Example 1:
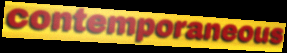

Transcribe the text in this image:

contemporaneous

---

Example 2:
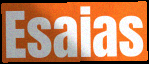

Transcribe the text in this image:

Esaias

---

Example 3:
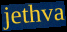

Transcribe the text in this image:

jethva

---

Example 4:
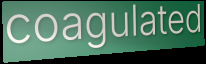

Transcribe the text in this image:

coagulated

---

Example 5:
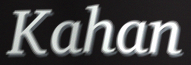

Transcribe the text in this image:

Kahan